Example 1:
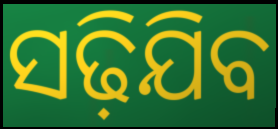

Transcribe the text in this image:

ସଢ଼ିଯିବ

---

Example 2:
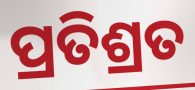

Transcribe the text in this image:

ପ୍ରତିଶ୍ରତ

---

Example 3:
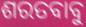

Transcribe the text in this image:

ଶରତବାବୁ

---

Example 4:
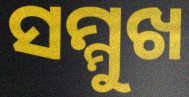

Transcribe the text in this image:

ସମ୍ମୁଖ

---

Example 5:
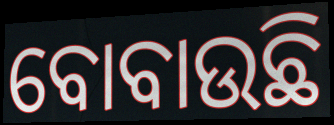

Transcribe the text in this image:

ବୋବାଉଛି